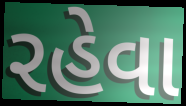
રહેવા